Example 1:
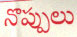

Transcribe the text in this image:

నొప్పులు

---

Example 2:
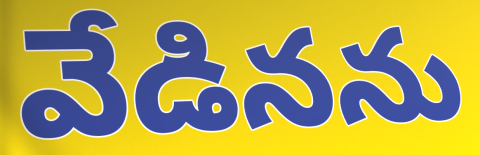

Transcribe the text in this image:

వేడినను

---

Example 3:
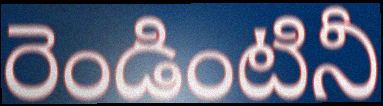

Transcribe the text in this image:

రెండింటినీ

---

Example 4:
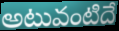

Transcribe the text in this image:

అటువంటిదే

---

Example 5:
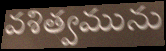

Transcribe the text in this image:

వశిత్వమును